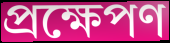
প্ৰক্ষেপণ